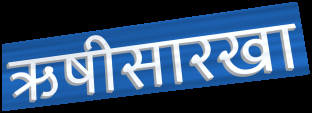
ऋषीसारखा